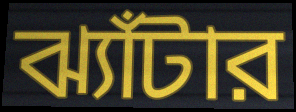
ঝ্যাঁটার